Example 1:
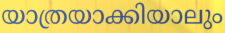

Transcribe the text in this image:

യാത്രയാക്കിയാലും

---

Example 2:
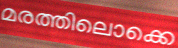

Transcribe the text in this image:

മരത്തിലൊക്കെ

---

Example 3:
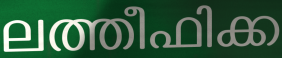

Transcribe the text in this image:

ലത്തീഫിക്ക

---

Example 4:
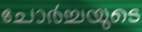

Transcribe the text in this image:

ചോർച്ചയുടെ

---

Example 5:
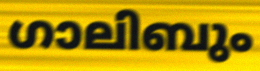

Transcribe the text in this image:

ഗാലിബും